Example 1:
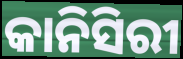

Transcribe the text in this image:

କାନିସିରୀ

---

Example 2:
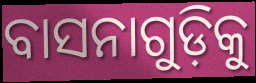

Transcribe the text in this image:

ବାସନାଗୁଡ଼ିକୁ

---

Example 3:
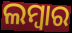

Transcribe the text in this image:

ଲମ୍ୱାର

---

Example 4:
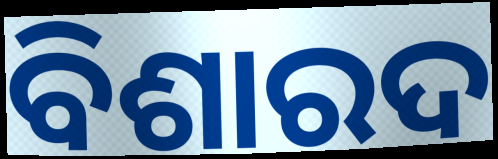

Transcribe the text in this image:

ବିଶାରଦ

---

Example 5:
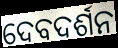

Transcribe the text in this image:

ଦେବଦର୍ଶନ